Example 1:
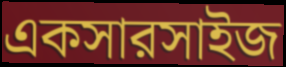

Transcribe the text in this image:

একসারসাইজ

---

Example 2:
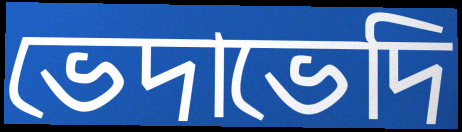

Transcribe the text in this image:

ভেদাভেদি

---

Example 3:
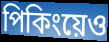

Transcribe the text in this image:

পিকিংয়েও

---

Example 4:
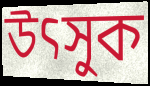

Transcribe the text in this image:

উৎসুক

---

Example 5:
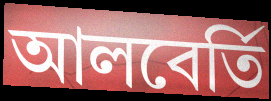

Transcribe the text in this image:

আলবের্তি